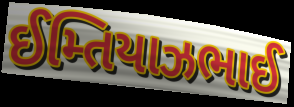
ઈમ્તિયાઝભાઈ